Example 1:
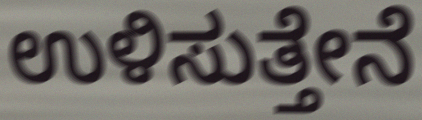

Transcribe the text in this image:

ಉಳಿಸುತ್ತೇನೆ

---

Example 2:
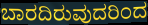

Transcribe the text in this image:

ಬಾರದಿರುವುದರಿಂದ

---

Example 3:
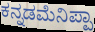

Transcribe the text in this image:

ಕನ್ನಡಮೆನಿಪ್ಪಾ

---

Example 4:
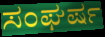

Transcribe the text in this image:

ಸಂಘರ್ಷ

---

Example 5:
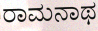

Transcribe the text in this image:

ರಾಮನಾಥ